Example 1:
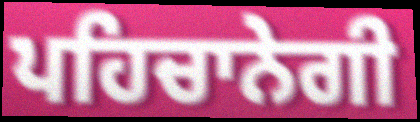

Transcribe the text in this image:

ਪਹਿਚਾਨੇਗੀ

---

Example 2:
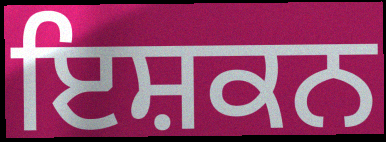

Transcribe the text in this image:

ਇਸ਼ਕਨ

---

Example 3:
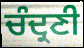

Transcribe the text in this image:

ਚੰਦ੍ਰਣੀ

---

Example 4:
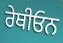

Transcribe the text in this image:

ਰੇਥੀਓਨ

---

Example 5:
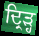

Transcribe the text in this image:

ਦ੍ਰਿੜ੍ਹ